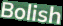
Bolish